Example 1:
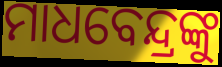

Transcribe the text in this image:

ମାଧବେନ୍ଦ୍ରଙ୍କୁ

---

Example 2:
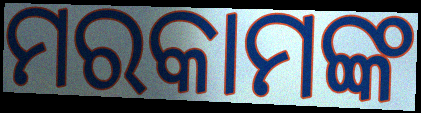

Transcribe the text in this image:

ମରକାମଙ୍କ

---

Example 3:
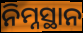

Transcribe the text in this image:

ନିମ୍ନସ୍ଥାନ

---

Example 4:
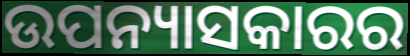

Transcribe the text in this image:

ଉପନ୍ୟାସକାରର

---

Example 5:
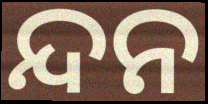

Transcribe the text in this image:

ନ୍ଦନ